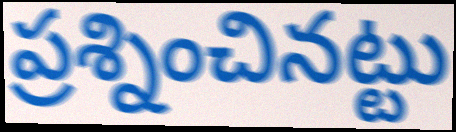
ప్రశ్నించినట్టు